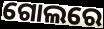
ଗୋଲରେ